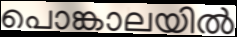
പൊങ്കാലയിൽ